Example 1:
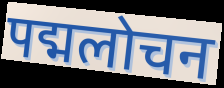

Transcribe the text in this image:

पद्मलोचन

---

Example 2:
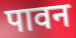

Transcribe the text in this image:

पावन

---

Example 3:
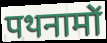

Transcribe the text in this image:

पथनामों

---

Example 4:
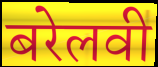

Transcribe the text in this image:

बरेलवी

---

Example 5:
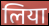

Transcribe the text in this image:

लिया